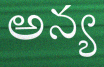
అన్య